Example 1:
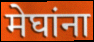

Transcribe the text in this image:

मेघांना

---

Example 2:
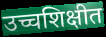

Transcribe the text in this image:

उच्चशिक्षीत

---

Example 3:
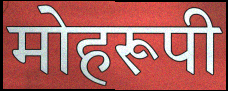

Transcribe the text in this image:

मोहरूपी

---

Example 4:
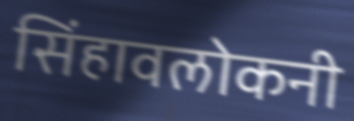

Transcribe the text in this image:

सिंहावलोकनी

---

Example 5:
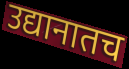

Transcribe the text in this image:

उद्यानातच